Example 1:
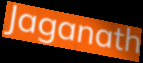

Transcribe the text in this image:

Jaganath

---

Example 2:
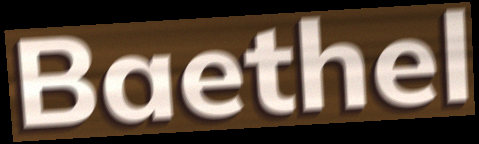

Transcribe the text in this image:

Baethel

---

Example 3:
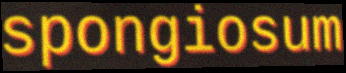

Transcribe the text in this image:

spongiosum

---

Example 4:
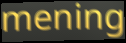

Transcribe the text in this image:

mening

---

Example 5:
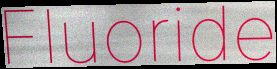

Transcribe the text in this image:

Fluoride